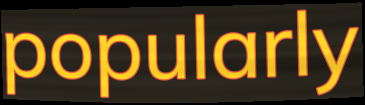
popularly